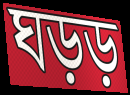
ঘড়ড়